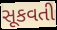
સૂકવતી